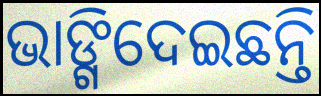
ଭାଙ୍ଗିଦେଇଛନ୍ତି